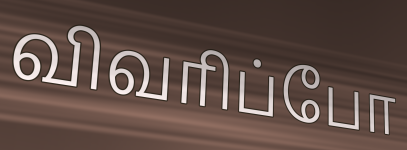
விவரிப்போ